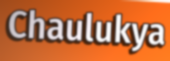
Chaulukya